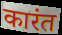
कारंत